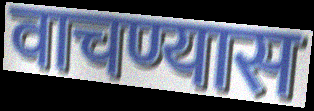
वाचण्यास